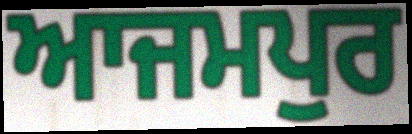
ਆਜਮਪੁਰ